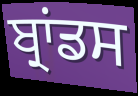
ਬ੍ਰਾਂਡਸ